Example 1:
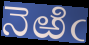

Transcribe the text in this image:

నెఱిఁ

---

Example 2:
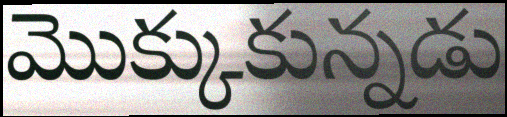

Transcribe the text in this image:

మొక్కుకున్నడు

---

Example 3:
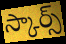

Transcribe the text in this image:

స్కార్స్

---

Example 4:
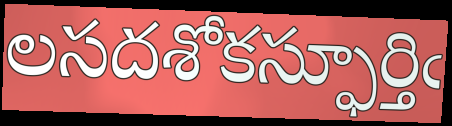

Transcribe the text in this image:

లసదశోకస్ఫూర్తిఁ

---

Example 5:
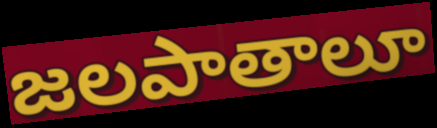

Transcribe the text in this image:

జలపాతాలూ